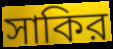
সাকির